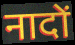
नादों